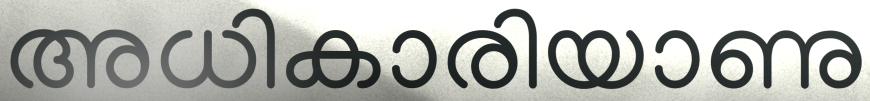
അധികാരിയാണു